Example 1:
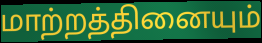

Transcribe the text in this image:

மாற்றத்தினையும்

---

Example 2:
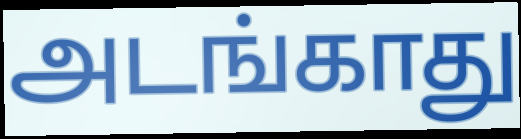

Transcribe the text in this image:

அடங்காது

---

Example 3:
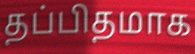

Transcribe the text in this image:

தப்பிதமாக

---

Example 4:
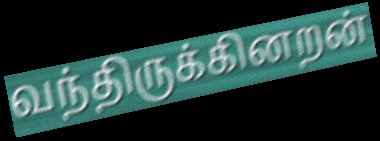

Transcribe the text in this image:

வந்திருக்கினறன்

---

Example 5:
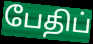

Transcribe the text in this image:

பேதிப்